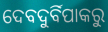
ଦେବଦୁର୍ବିପାକରୁ